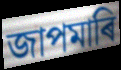
জাপমাৰি